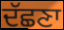
ਦੱਛਣਾ